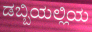
ಡಬ್ಬಿಯಲ್ಲಿಯ